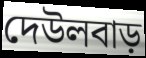
দেউলবাড়